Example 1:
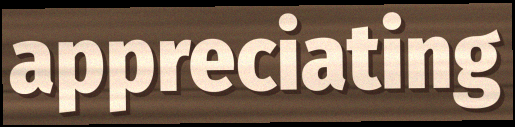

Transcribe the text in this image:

appreciating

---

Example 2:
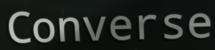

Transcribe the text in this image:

Converse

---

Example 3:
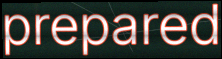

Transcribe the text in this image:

prepared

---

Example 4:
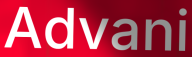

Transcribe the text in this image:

Advani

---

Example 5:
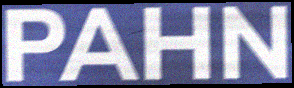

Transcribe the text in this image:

PAHN